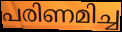
പരിണമിച്ച